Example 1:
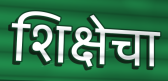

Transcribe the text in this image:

शिक्षेचा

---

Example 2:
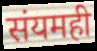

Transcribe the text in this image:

संयमही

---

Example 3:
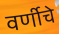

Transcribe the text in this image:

वर्णीचे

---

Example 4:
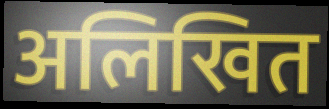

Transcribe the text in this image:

अलिखित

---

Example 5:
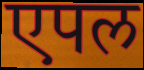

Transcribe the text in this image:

एपल